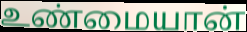
உண்மையான்